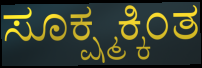
ಸೂಕ್ಷ್ಮಕ್ಕಿಂತ